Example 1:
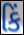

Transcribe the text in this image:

કિં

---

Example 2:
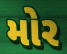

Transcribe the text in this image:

મોર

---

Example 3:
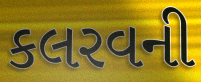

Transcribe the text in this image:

કલરવની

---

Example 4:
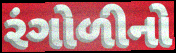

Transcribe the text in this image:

રંગોળીનો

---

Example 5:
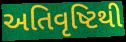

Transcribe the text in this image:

અતિવૃષ્ટિથી